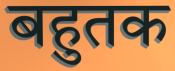
बहुतक